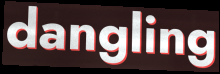
dangling